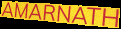
AMARNATH